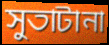
সুতাটানা